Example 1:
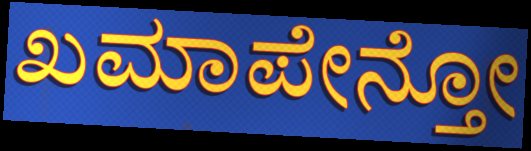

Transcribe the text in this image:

ಖಮಾಪೇನ್ತೋ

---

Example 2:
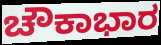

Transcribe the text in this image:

ಚೌಕಾಭಾರ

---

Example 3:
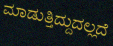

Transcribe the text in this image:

ಮಾಡುತ್ತಿದ್ದುದಲ್ಲದೆ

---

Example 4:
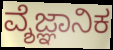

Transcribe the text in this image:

ವ್ಶೆಜ್ಞಾನಿಕ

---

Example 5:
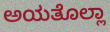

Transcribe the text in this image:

ಅಯತೊಲ್ಲಾ